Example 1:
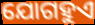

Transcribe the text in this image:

ଯୋଗହୁଏ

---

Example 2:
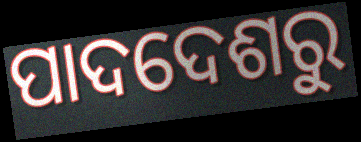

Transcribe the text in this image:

ପାଦଦେଶରୁ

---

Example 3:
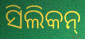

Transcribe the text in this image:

ସିଲିକନ୍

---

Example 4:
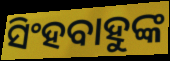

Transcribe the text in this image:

ସିଂହବାହୁଙ୍କ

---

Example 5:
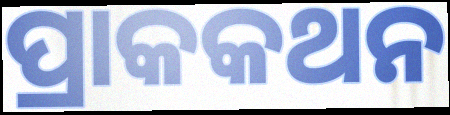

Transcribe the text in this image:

ପ୍ରାକକଥନ